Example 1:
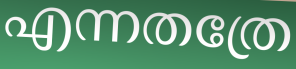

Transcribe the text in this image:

എന്നതത്രേ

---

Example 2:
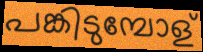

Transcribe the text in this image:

പങ്കിടുമ്പോള്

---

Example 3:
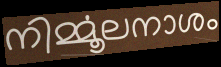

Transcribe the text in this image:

നിൎമ്മൂലനാശം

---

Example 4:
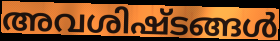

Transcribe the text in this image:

അവശിഷ്ടങ്ങൾ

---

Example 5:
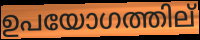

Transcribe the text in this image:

ഉപയോഗത്തില്